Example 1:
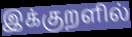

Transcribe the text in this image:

இக்குறளில்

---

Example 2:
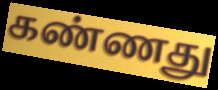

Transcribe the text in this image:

கண்ணது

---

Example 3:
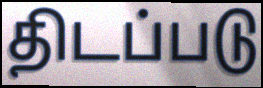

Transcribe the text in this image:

திடப்படு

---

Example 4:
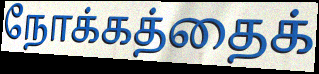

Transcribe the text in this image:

நோக்கத்தைக்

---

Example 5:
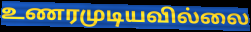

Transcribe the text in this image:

உணரமுடியவில்லை